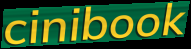
cinibook